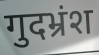
गुदभ्रंश